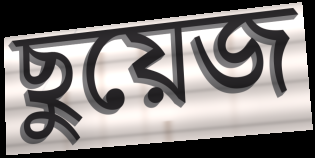
ছুয়েজ